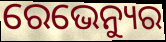
ରେଭେନ୍ୟୁର